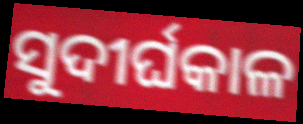
ସୁଦୀର୍ଘକାଳ